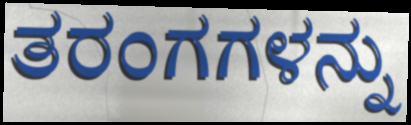
ತರಂಗಗಳನ್ನು